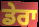
ਡੇਰਾ